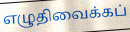
எழுதிவைக்கப்